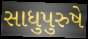
સાધુપુરુષે